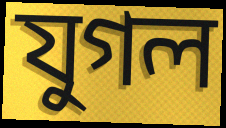
যুগল